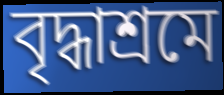
বৃদ্ধাশ্রমে